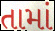
તામાં